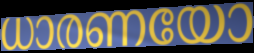
ധാരണയോ